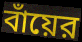
বাঁয়ের